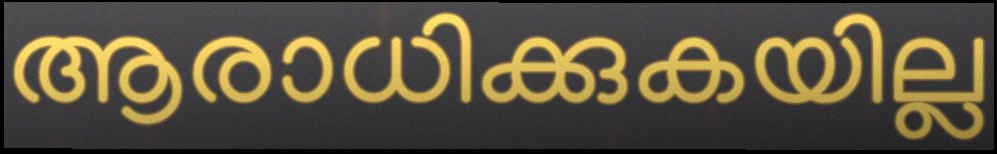
ആരാധിക്കുകയില്ല